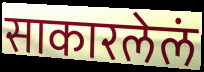
साकारलेलं